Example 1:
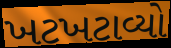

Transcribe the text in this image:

ખટખટાવ્યો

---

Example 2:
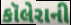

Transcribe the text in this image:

કૉલેરાની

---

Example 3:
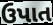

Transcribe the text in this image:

ઉપાત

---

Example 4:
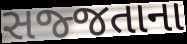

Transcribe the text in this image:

સજ્જતાના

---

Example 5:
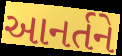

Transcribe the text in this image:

આનર્તને